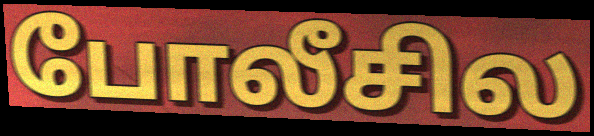
போலீசில